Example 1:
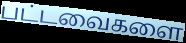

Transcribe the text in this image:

பட்டவைகளை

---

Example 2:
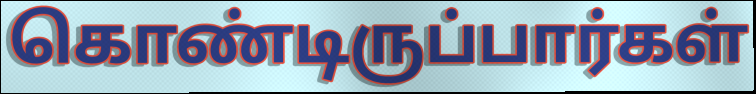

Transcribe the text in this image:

கொண்டிருப்பார்கள்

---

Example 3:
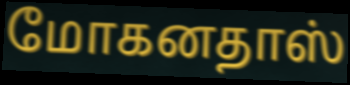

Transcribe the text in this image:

மோகனதாஸ்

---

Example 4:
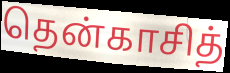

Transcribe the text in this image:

தென்காசித்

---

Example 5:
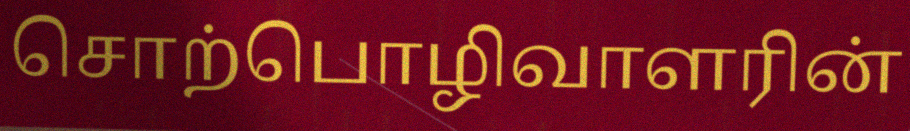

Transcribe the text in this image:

சொற்பொழிவாளரின்